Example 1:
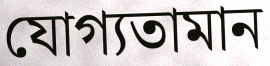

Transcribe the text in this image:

যোগ্যতামান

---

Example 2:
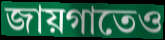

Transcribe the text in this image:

জায়গাতেও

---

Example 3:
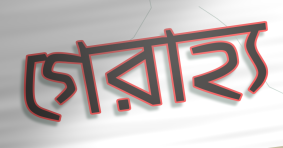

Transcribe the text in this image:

গেরাহ্য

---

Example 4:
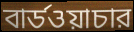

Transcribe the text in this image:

বার্ডওয়াচার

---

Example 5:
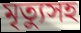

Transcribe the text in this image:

মৃত্যুসহ